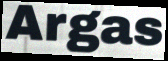
Argas